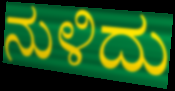
ನುಳಿದು